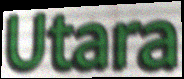
Utara